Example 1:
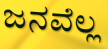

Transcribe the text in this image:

ಜನವೆಲ್ಲ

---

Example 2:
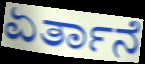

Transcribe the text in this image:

ಏರ್ತಾನೆ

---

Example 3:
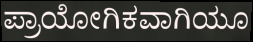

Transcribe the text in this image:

ಪ್ರಾಯೋಗಿಕವಾಗಿಯೂ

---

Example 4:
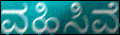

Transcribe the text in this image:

ವಹಿಸಿವೆ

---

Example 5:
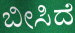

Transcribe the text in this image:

ಬೀಸಿದೆ